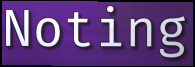
Noting